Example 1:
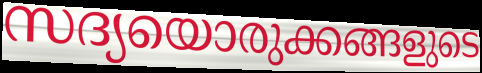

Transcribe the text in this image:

സദ്യയൊരുക്കങ്ങളുടെ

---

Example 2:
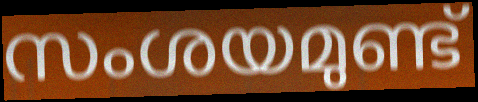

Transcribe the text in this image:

സംശയമുണ്ട്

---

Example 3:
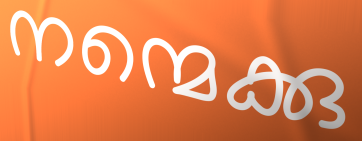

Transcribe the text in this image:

നന്മെക്കു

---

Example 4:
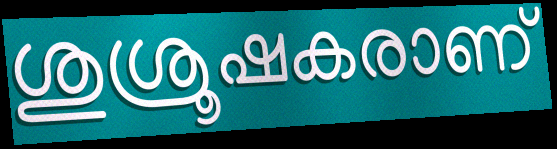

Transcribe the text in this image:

ശുശ്രൂഷകരാണ്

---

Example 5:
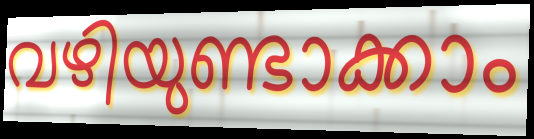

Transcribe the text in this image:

വഴിയുണ്ടാക്കാം